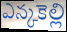
ఎన్కకెల్లి